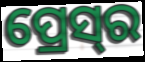
ପ୍ରେସ୍‌ର